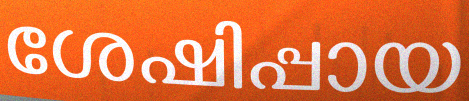
ശേഷിപ്പായ